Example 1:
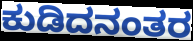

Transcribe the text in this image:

ಕುಡಿದನಂತರ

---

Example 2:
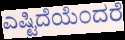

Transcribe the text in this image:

ಎಷ್ಟಿದೆಯೆಂದರೆ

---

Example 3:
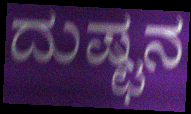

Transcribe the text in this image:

ದುಷ್ಟನ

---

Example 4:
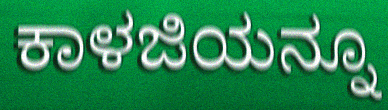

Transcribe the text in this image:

ಕಾಳಜಿಯನ್ನೂ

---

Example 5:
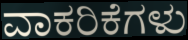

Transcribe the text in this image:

ವಾಕರಿಕೆಗಳು